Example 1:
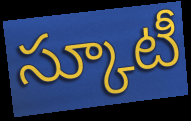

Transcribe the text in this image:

స్కూటీ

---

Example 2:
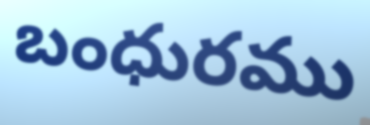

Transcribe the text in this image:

బంధురము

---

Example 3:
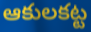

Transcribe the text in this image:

ఆకులకట్ట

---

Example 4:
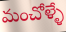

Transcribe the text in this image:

మంచోళ్ళే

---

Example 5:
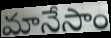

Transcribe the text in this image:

మానేసాం